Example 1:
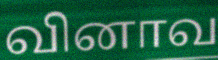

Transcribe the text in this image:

வினாவ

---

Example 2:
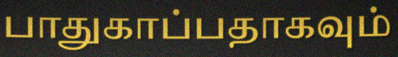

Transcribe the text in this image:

பாதுகாப்பதாகவும்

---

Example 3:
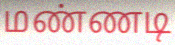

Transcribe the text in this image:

மண்ணடி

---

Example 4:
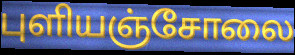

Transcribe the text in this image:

புளியஞ்சோலை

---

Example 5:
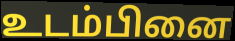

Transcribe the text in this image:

உடம்பினை